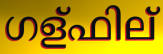
ഗള്ഫില്